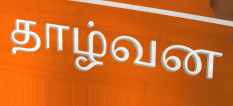
தாழ்வன